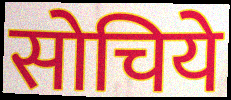
सोचिये